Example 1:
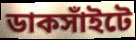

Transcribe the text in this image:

ডাকসাঁইটে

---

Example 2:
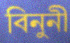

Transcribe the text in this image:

বিনুনী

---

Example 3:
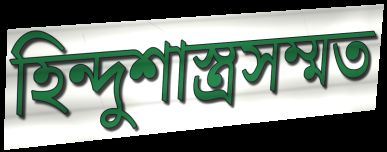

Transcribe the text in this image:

হিন্দুশাস্ত্রসম্মত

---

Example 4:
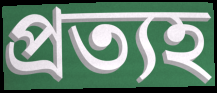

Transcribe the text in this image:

প্রত্যহ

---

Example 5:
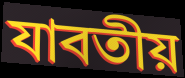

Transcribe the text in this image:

যাবতীয়